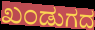
ಖಂಡುಗದ